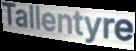
Tallentyre